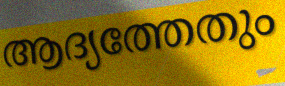
ആദ്യത്തേതും